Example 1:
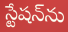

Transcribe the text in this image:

స్టేషన్‌ను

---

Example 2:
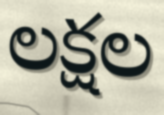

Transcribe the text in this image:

లక్షల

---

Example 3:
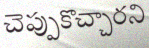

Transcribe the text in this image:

చెప్పుకొచ్చారని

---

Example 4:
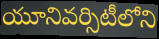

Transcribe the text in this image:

యూనివర్సిటీలోని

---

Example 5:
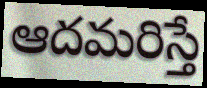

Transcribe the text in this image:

ఆదమరిస్తే